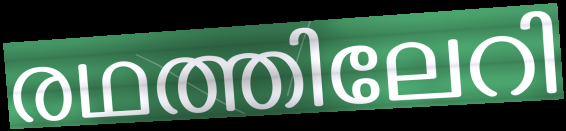
രഥത്തിലേറി